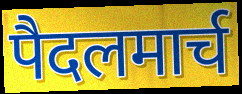
पैदलमार्च